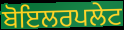
ਬੋਇਲਰਪਲੇਟ